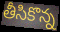
తీసికొన్న